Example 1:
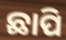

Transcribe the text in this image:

ଛାପି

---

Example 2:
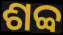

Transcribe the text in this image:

ଶବ୍ବ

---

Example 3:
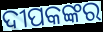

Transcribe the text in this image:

ଦୀପକଙ୍କର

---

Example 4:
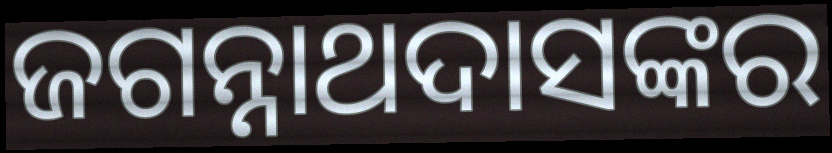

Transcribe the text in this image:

ଜଗନ୍ନାଥଦାସଙ୍କର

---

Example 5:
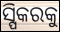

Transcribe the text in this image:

ସ୍ପିକରକୁ